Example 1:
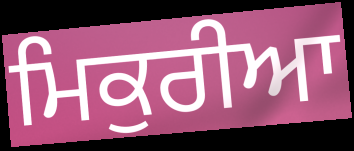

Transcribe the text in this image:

ਮਿਕੁਰੀਆ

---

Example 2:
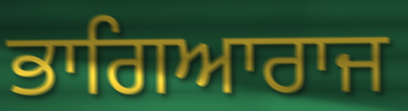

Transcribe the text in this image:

ਭਾਗਿਆਰਾਜ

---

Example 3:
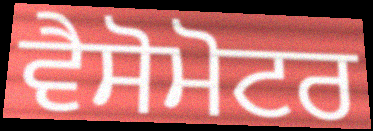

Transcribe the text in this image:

ਵੈਸੋਮੋਟਰ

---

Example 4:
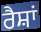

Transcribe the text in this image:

ਰੈਸ਼ਾਂ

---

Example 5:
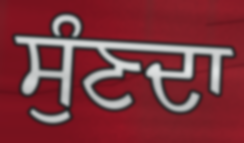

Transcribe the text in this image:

ਸੁੰਣਦਾ